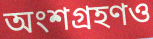
অংশগ্রহণও